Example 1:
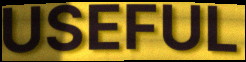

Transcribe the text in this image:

USEFUL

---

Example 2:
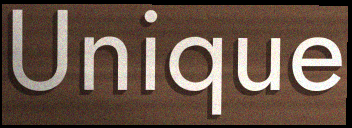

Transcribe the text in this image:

Unique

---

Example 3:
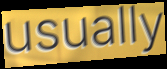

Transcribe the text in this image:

usually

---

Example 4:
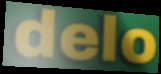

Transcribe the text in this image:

delo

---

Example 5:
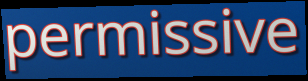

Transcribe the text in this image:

permissive